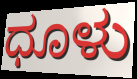
ಧೂಳು